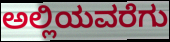
ಅಲ್ಲಿಯವರೆಗು